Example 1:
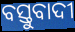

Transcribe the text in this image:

ବସ୍ତୁବାଦୀ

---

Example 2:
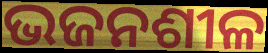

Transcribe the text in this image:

ଭଜନଶୀଳ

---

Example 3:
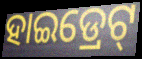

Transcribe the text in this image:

ହାଇଡ୍ରେଟ୍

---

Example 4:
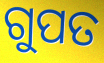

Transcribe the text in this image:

ଗୁପତ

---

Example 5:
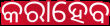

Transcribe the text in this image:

କରାହେବ